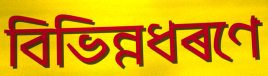
বিভিন্নধৰণে